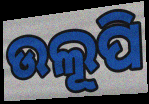
ଉଲୂପି